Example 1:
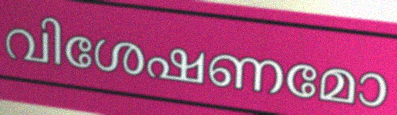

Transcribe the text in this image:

വിശേഷണമോ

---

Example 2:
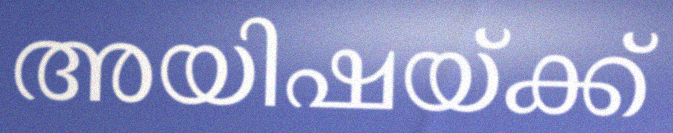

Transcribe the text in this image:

അയിഷയ്ക്ക്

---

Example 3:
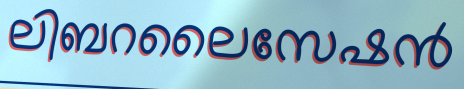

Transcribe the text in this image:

ലിബറലൈസേഷൻ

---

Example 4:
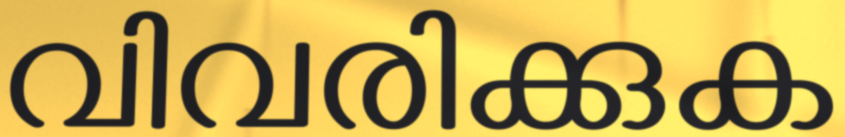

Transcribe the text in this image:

വിവരിക്കുക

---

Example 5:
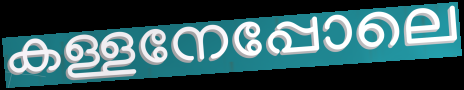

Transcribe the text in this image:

കള്ളനേപ്പോലെ